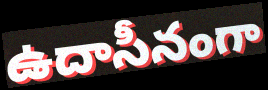
ఉదాసీనంగా